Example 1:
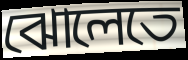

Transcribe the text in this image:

ঝোলেতে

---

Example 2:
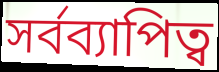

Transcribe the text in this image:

সর্বব্যাপিত্ব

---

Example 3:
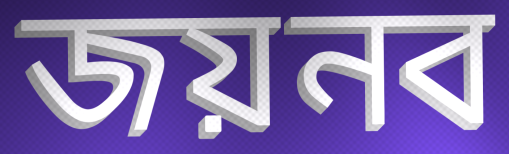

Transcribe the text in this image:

জয়নব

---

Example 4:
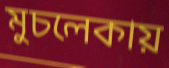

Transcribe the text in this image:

মুচলেকায়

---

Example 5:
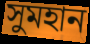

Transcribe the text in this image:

সুমহান